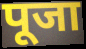
पूजा